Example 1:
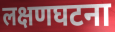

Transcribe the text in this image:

लक्षणघटना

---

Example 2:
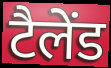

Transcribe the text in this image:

टैलेंड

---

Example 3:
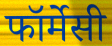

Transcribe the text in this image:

फॉर्मेसी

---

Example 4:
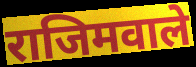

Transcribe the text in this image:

राजिमवाले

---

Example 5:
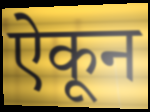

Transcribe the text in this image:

ऐकून